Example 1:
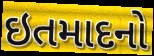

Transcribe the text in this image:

ઇતમાદનો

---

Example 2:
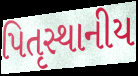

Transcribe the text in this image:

પિતૃસ્થાનીય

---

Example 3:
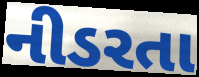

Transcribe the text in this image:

નીડરતા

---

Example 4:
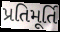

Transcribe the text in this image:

પ્રતિમૂર્તિ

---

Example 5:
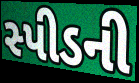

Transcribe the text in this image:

સ્પીડની